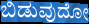
ಬಿಡುವುದೋ